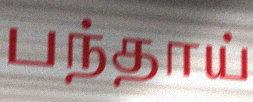
பந்தாய்